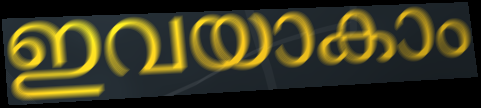
ഇവയാകാം